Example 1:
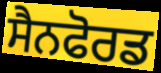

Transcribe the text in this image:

ਸੈਨਫੋਰਡ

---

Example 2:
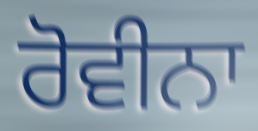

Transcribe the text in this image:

ਰੋਵੀਨਾ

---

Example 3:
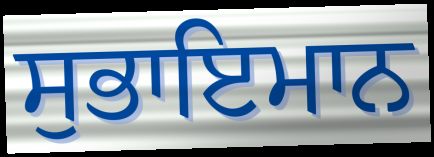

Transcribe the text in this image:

ਸੁਭਾਇਮਾਨ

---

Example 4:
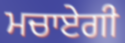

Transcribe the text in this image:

ਮਚਾਏਗੀ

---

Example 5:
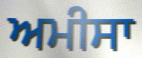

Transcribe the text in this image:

ਅਮੀਸਾ